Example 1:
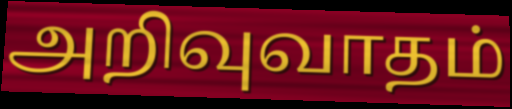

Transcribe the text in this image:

அறிவுவாதம்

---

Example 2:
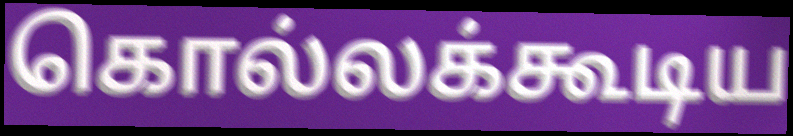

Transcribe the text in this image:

கொல்லக்கூடிய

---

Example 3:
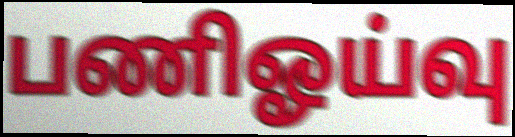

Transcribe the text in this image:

பணிஓய்வு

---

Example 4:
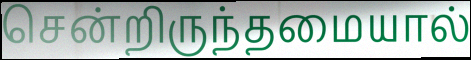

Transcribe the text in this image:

சென்றிருந்தமையால்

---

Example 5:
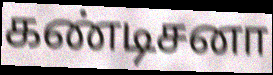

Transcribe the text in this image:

கண்டிசனா